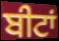
ਬੀਟਾਂ